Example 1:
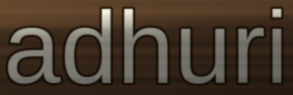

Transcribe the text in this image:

adhuri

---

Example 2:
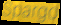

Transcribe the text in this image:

Spargo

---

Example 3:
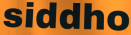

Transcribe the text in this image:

siddho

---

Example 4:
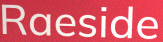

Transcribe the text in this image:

Raeside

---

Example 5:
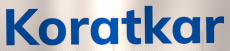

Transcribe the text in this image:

Koratkar